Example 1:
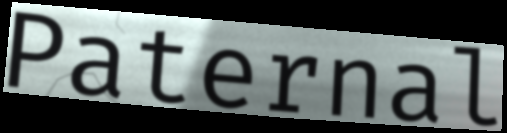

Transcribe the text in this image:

Paternal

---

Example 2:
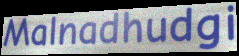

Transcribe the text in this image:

Malnadhudgi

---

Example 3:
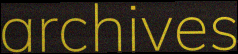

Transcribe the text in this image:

archives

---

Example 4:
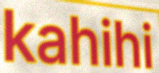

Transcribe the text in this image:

kahihi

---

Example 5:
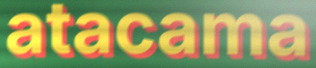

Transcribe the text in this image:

atacama